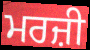
ਮਰਜ਼ੀ